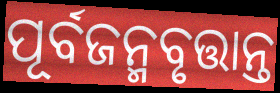
ପୂର୍ବଜନ୍ମବୃତ୍ତାନ୍ତ